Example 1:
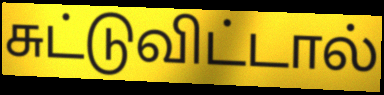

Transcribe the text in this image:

சுட்டுவிட்டால்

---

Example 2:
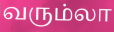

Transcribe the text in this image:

வரும்லா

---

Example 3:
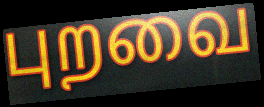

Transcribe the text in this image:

புறவை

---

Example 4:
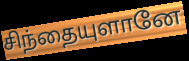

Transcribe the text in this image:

சிந்தையுளானே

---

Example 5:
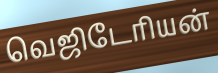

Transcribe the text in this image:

வெஜிடேரியன்